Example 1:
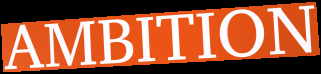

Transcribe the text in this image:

AMBITION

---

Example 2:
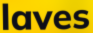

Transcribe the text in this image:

laves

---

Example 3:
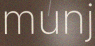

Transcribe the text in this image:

munj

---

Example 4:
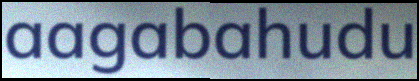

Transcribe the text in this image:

aagabahudu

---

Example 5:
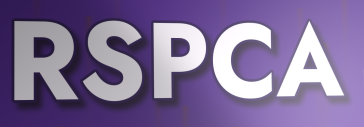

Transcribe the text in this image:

RSPCA